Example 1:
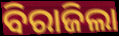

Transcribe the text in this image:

ବିରାଜିଲା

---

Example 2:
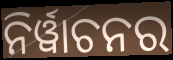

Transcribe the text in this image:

ନିର୍ୱାଚନର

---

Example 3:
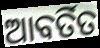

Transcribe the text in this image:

ଆବର୍ତିତ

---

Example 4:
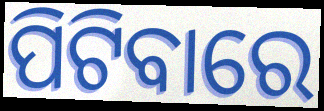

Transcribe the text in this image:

ପିଟିବାରେ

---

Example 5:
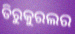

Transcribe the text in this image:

ତିରୁକୁରଲର